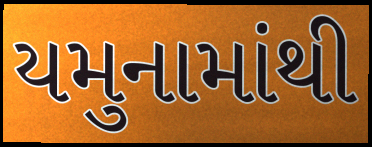
યમુનામાંથી